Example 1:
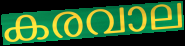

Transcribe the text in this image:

കരവാല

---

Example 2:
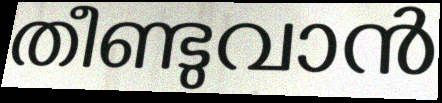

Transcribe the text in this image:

തീണ്ടുവാൻ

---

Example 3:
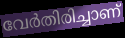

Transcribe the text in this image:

വേർതിരിച്ചാണ്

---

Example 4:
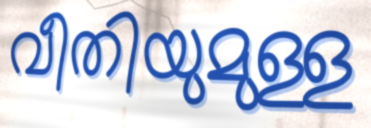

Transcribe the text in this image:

വീതിയുമുള്ള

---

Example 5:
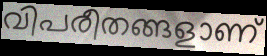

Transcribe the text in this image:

വിപരീതങ്ങളാണ്